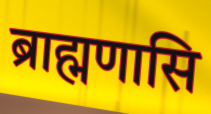
ब्राह्मणासि